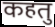
कहतु